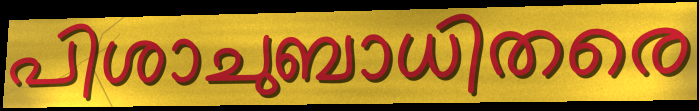
പിശാചുബാധിതരെ